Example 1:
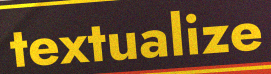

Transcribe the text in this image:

textualize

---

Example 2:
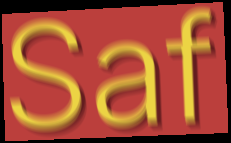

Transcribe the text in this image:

Saf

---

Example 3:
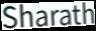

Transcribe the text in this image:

Sharath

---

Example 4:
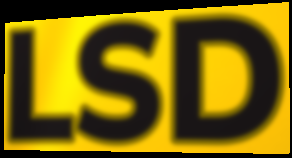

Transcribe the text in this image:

LSD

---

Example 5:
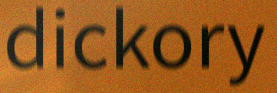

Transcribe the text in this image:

dickory